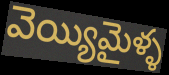
వెయ్యిమైళ్ళ